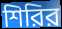
শিরির